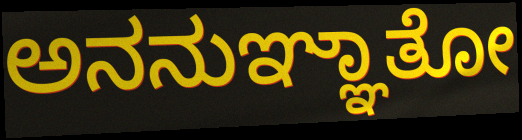
ಅನನುಞ್ಞಾತೋ